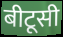
बीटूसी